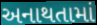
અનાથતામાં